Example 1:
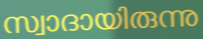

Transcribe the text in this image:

സ്വാദായിരുന്നു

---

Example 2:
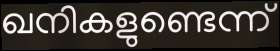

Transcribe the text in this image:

ഖനികളുണ്ടെന്ന്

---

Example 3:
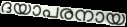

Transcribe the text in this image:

ദയാപരനായ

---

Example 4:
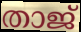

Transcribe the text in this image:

താജ്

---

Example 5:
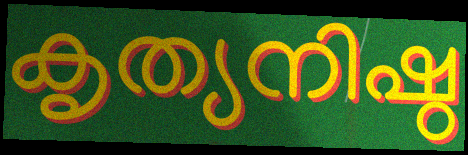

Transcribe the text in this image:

കൃത്യനിഷ്ഠ